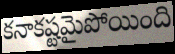
కనాకష్టమైపోయింది